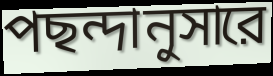
পছন্দানুসারে